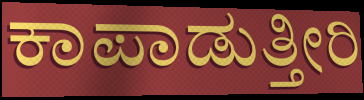
ಕಾಪಾಡುತ್ತೀರಿ